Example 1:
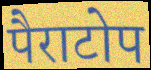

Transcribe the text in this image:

पैराटोप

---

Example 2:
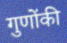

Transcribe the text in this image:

गुणोंकी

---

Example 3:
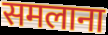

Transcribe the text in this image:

समलाना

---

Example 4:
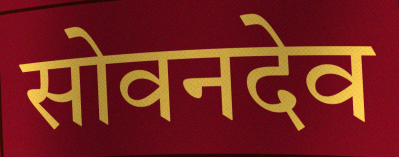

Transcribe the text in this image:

सोवनदेव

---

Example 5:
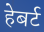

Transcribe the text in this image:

हेबर्ट